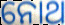
ନୋଥ